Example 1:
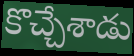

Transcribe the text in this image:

కొచ్చేశాడు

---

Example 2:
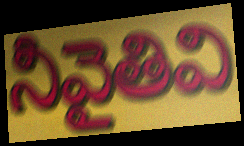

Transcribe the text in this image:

నీవైతివి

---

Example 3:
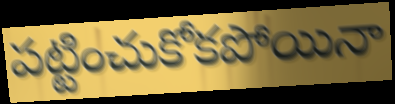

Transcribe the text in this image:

పట్టించుకోకపోయినా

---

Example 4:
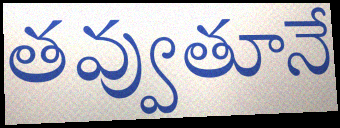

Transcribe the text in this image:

తవ్వుతూనే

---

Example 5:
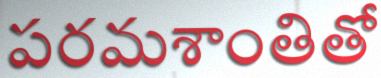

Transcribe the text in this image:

పరమశాంతితో